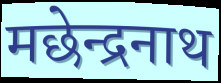
मछेन्द्रनाथ